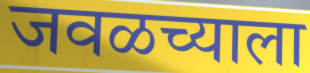
जवळच्याला